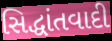
સિદ્ધાંતવાદી